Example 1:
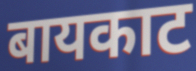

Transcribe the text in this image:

बायकाट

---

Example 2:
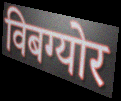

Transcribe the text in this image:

विबग्योर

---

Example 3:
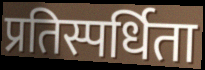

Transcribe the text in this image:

प्रतिस्पर्धिता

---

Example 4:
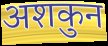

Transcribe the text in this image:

अशकुन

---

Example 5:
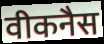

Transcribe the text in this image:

वीकनैस